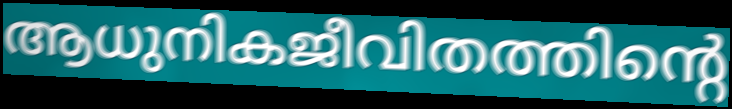
ആധുനികജീവിതത്തിന്റെ